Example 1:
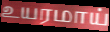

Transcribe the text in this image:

உயரமாய்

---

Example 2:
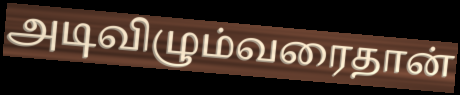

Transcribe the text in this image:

அடிவிழும்வரைதான்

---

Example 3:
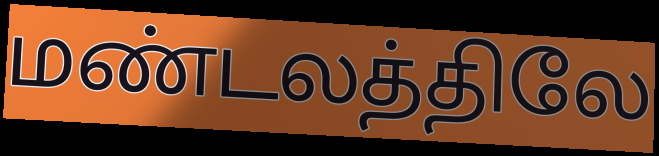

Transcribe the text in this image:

மண்டலத்திலே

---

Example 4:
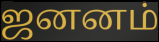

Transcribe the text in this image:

ஜனனம்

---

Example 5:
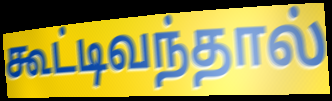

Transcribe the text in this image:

கூட்டிவந்தால்